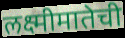
लक्ष्मीमातेची